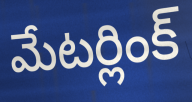
మేటర్లింక్